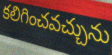
కలిగించవచ్చును